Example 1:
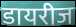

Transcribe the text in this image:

डायरीज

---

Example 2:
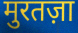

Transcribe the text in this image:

मुरतज़ा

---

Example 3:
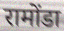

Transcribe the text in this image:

रामोंडा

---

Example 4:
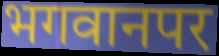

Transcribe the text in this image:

भगवानपर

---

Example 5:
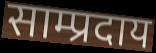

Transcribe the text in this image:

साम्प्रदाय